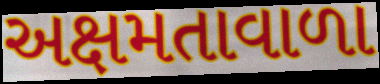
અક્ષમતાવાળા